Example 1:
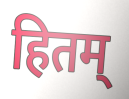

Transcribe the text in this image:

हितम्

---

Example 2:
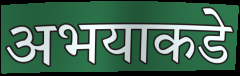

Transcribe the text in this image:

अभयाकडे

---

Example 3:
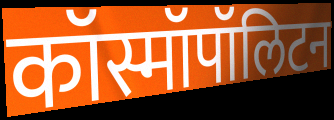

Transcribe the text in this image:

कॉस्मॉपॉलिटन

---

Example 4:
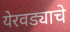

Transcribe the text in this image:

येरवड्याचे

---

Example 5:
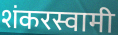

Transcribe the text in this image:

शंकरस्वामी